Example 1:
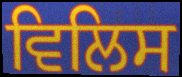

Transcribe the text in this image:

ਵਿਲਿਸ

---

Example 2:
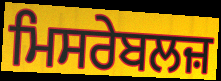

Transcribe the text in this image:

ਮਿਸਰੇਬਲਜ਼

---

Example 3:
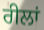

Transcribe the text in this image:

ਰੀਲਾਂ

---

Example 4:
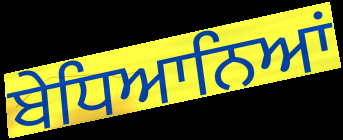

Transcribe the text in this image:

ਬੇਧਿਆਨਿਆਂ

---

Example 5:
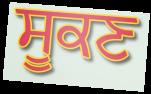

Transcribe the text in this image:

ਸੂਕਣ